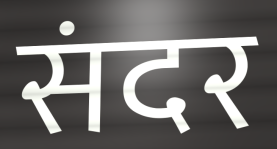
संदर